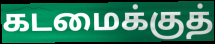
கடமைக்குத்